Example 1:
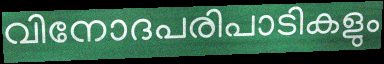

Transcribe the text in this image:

വിനോദപരിപാടികളും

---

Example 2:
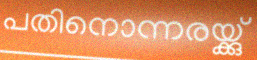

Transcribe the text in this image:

പതിനൊന്നരയ്ക്കു്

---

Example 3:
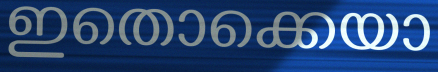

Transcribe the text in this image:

ഇതൊക്കെയാ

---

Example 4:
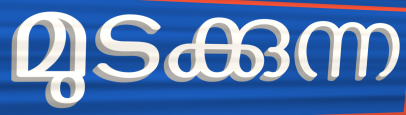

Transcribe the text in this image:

മുടക്കുന്ന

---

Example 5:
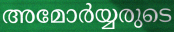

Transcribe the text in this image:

അമോർയ്യരുടെ